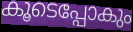
കൂടെപ്പോകും